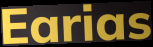
Earias